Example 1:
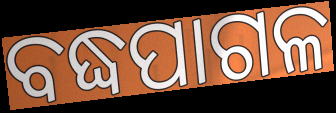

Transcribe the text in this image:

ବଦ୍ଧପାଗଳ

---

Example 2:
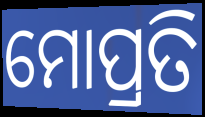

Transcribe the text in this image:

ମୋପ୍ରତି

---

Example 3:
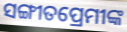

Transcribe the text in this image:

ସଙ୍ଗୀତପ୍ରେମୀଙ୍କ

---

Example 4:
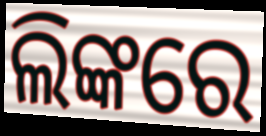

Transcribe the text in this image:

ଲିଙ୍କରେ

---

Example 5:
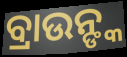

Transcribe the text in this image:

ବ୍ରାଉନ୍ଙ୍କ